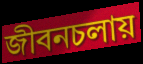
জীবনচলায়